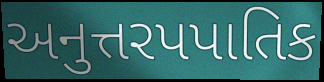
અનુત્તરપપાતિક